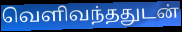
வெளிவந்ததுடன்